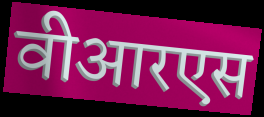
वीआरएस